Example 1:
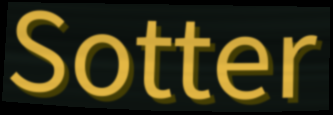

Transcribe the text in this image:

Sotter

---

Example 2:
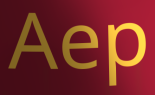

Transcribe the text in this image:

Aep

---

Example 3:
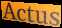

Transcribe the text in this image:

Actus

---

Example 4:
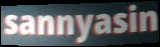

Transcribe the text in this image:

sannyasin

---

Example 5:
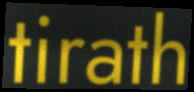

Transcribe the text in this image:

tirath